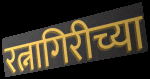
रत्नागिरीच्या